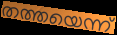
തത്തയെന്ന്